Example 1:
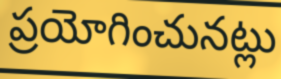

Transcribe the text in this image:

ప్రయోగించునట్లు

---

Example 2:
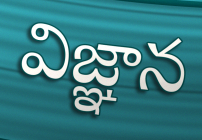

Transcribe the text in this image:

విజ్ఞాన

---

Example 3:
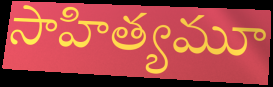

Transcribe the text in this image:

సాహిత్యమూ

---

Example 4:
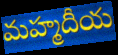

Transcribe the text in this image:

మహ్మదీయ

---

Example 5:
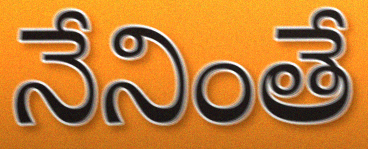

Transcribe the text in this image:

నేనింతే